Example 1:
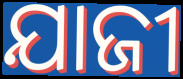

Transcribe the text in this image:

ଯାଜୀ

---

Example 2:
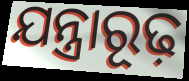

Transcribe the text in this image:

ଯନ୍ତ୍ରାରୂଢ଼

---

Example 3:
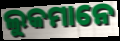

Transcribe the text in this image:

ଲୁକମାନେ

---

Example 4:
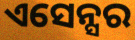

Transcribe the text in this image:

ଏସେନ୍ସର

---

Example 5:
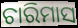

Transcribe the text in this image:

ଚାରିମାସ